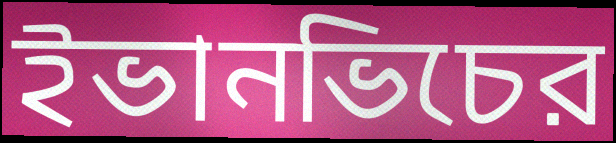
ইভানভিচের